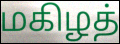
மகிழத்